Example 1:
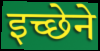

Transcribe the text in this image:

इच्छेने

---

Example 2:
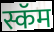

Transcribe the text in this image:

स्कॅम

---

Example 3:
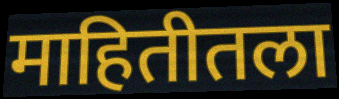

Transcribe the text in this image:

माहितीतला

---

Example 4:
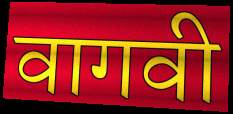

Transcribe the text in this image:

वागवी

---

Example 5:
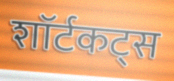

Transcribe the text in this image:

शॉर्टकट्स